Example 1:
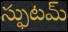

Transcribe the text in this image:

స్ఫుటమ్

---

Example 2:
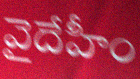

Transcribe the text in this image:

వైదేహీం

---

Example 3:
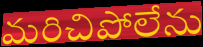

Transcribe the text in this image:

మరిచిపోలేను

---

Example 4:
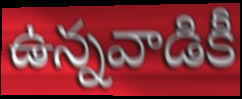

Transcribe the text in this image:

ఉన్నవాడికీ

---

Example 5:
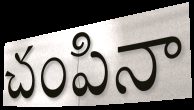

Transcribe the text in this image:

చంపినా